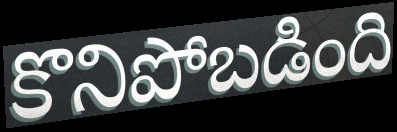
కొనిపోబడింది